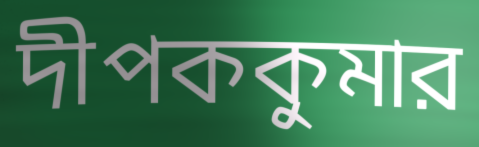
দীপককুমার